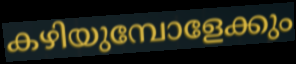
കഴിയുമ്പോളേക്കും